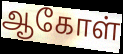
ஆகோள்